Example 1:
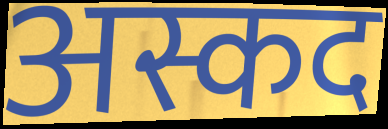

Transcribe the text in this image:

अस्कद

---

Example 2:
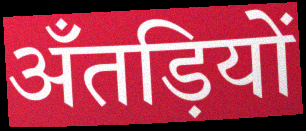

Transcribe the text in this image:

अँतड़ियों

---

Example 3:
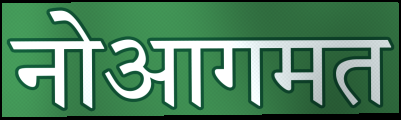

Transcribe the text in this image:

नोआगमत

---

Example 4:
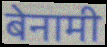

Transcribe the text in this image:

बेनामी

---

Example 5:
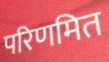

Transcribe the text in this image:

परिणमित